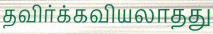
தவிர்க்கவியலாதது